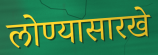
लोण्यासारखे